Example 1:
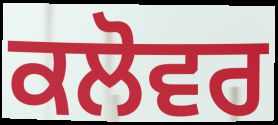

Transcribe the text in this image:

ਕਲੋਵਰ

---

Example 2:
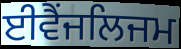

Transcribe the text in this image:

ਈਵੈਂਜਲਿਜਮ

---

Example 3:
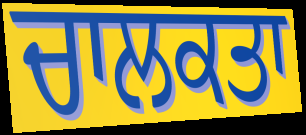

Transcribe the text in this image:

ਚਾਲਕਤਾ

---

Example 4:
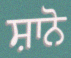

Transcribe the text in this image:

ਸ਼ਾਨੋ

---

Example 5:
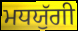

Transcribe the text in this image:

ਮਧਯੁੱਗੀ